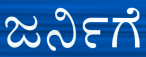
ಜರ್ನಿಗೆ